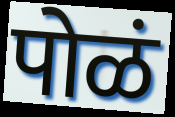
पोळं